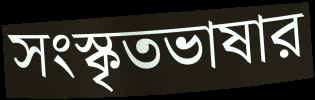
সংস্কৃতভাষার